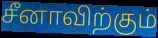
சீனாவிற்கும்